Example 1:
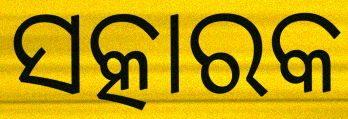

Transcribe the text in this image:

ସତ୍କାରକ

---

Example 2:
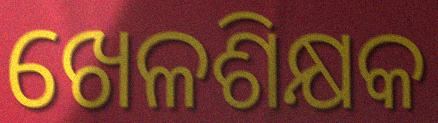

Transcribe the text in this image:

ଖେଳଶିକ୍ଷକ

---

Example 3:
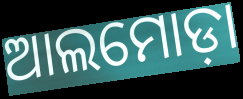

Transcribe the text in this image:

ଆଲମୋଡ଼ା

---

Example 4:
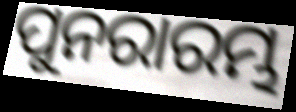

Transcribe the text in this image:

ପୁନରାରମ୍ଭ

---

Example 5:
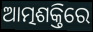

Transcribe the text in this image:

ଆତ୍ମଶକ୍ତିରେ